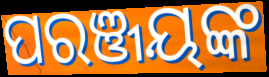
ପରଞ୍ଜୟଙ୍କ